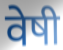
वेषी